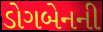
ડોગબેનની